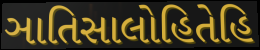
ઞાતિસાલોહિતેહિ